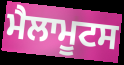
ਮੈਲਾਮੂਟਸ